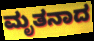
ಮೃತನಾದ